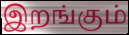
இறங்கும்